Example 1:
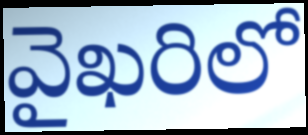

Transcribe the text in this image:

వైఖరిలో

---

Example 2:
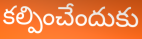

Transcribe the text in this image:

కల్పించేందుకు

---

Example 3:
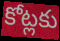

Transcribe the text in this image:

కోట్లకు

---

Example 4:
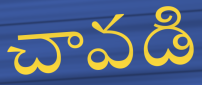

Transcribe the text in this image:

చావడి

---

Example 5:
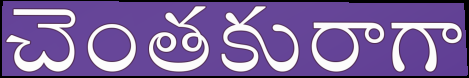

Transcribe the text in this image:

చెంతకురాగా